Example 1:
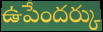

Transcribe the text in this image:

ఉపేందర్కు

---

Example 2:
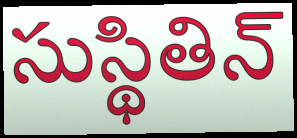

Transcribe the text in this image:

సుస్థితిన్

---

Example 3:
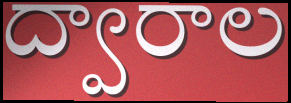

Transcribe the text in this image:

ద్వారాల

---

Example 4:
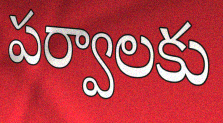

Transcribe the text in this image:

పర్వాలకు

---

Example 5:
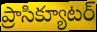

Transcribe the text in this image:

ప్రాసిక్యూటర్